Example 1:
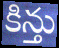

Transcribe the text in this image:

కిన్తు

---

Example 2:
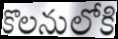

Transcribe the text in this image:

కొలనులోకి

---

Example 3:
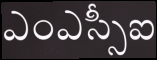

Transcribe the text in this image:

ఎంఎస్సీఐ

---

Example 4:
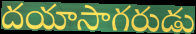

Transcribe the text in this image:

దయాసాగరుడు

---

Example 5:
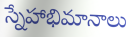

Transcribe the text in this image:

స్నేహాభిమానాలు